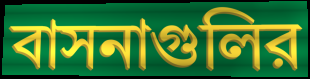
বাসনাগুলির